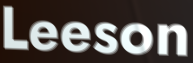
Leeson